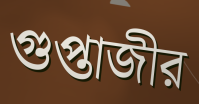
গুপ্তাজীর